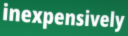
inexpensively